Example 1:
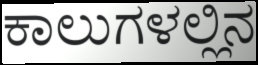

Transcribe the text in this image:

ಕಾಲುಗಳಲ್ಲಿನ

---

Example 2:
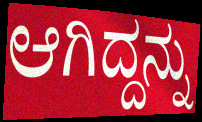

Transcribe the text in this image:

ಆಗಿದ್ದನ್ನು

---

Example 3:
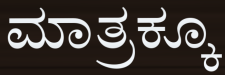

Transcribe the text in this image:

ಮಾತ್ರಕ್ಕೂ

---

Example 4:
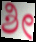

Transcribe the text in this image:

ಶೀ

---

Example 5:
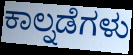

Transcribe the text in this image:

ಕಾಲ್ನಡೆಗಳು